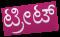
ಟ್ರೀಟ್